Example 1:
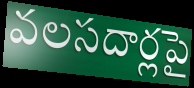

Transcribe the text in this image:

వలసదార్లపై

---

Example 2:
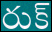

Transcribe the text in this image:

రుక్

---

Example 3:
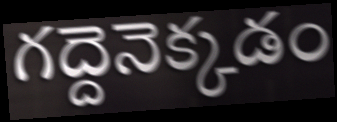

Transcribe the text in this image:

గద్దెనెక్కడం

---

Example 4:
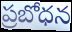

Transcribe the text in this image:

ప్రబోధన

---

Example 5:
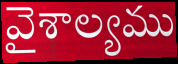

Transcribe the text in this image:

వైశాల్యము